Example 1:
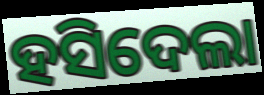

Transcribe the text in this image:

ହସିଦେଲା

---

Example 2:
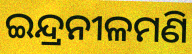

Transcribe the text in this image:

ଇନ୍ଦ୍ରନୀଳମଣି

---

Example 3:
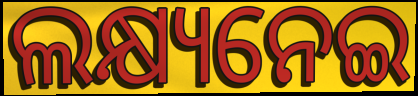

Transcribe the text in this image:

ଲକ୍ଷ୍ୟନେଇ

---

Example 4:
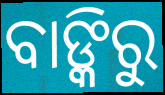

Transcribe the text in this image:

ବାଙ୍କିରୁ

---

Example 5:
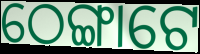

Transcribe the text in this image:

ଠେଙ୍ଗାଟେ